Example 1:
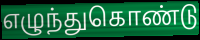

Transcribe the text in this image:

எழுந்துகொண்டு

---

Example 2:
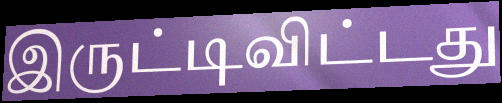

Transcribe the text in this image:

இருட்டிவிட்டது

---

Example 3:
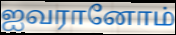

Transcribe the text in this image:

ஐவரானோம்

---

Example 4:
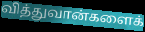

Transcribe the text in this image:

வித்துவான்களைக்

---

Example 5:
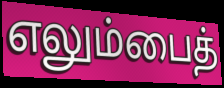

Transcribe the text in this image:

எலும்பைத்